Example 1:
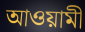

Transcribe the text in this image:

আওয়ামী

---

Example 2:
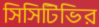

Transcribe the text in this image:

সিসিটিভির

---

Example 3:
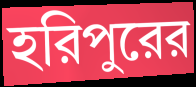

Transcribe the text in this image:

হরিপুরের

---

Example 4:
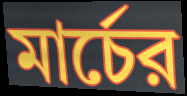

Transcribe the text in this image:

মার্চের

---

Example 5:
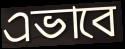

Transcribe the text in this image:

এভাবে